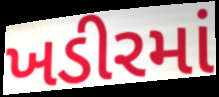
ખડીરમાં